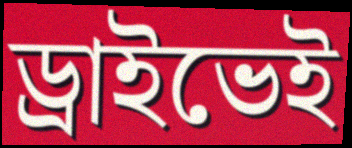
ড্রাইভেই